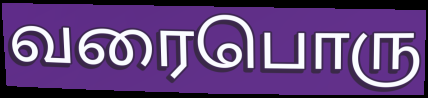
வரைபொரு